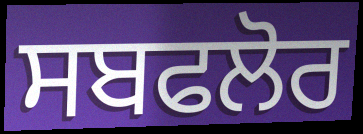
ਸਬਫਲੋਰ